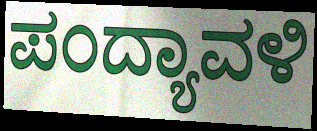
ಪಂದ್ಯಾವಳಿ